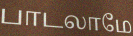
பாடலாமே